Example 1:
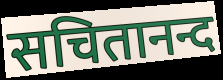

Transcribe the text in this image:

सचितानन्द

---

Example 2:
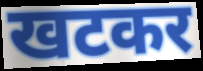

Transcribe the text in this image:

खटकर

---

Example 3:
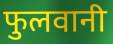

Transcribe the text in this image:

फुलवानी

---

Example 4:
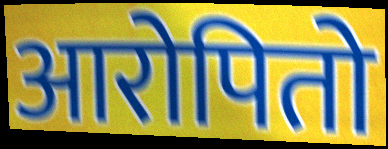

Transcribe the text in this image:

आरोपितो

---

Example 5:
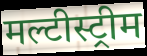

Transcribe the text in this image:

मल्टीस्ट्रीम